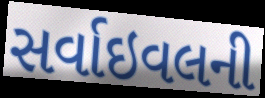
સર્વાઇવલની